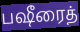
பஷீரைத்